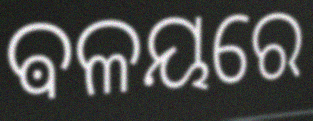
ଵଳୟରେ